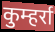
कुम्हर्रा